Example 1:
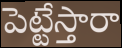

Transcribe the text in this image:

పెట్టేస్తారా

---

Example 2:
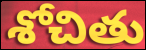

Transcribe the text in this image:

శోచితు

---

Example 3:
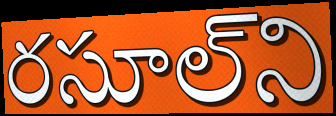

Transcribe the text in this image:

రసూల్‌ని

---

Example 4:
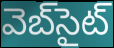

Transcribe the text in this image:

వెబ్‌సైట్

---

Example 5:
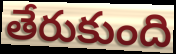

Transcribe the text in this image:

తేరుకుంది